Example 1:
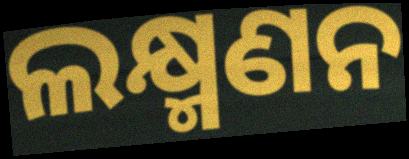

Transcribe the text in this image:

ଲକ୍ଷ୍ମଣନ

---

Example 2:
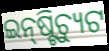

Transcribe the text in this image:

ଇନ୍‍ଷ୍ଟିଚ୍ୟୁଟ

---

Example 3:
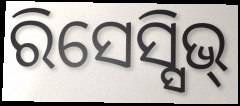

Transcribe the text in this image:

ରିସେସ୍ସିଭ୍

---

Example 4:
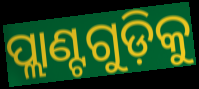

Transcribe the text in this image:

ପ୍ଲାଣ୍ଟଗୁଡ଼ିକୁ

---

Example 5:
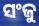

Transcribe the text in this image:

ସଂଜୁ